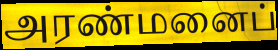
அரண்மனைப்